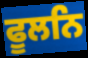
ਫੂਲਨਿ